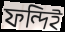
ফন্দিই